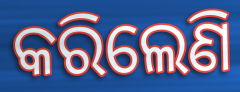
କରିଲେଣି